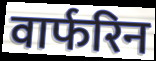
वार्फरिन